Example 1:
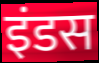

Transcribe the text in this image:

इंडस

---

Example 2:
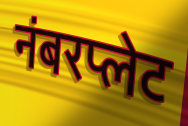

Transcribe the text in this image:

नंबरप्लेट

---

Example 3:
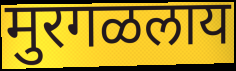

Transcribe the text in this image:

मुरगळलाय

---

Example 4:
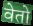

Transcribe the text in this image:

वेतो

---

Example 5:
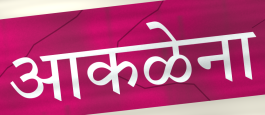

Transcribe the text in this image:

आकळेना